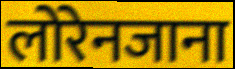
लोरेनजाना